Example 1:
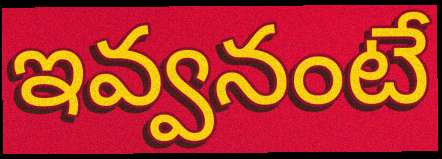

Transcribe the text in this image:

ఇవ్వనంటే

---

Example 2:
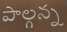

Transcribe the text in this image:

పాల్గన్న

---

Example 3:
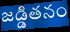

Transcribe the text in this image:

జడ్డితనం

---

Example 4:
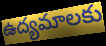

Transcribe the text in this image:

ఉద్యమాలకు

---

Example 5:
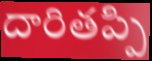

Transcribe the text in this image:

దారితప్పి